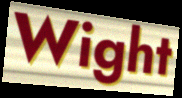
Wight